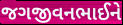
જગજીવનભાઈને